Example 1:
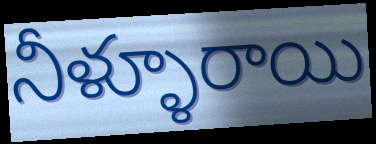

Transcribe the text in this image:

నీళ్ళూరాయి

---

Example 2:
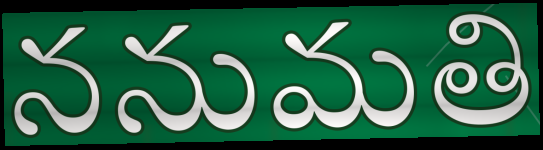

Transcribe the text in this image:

ననుమతి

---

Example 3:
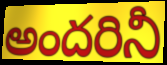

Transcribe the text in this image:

అందరినీ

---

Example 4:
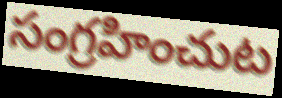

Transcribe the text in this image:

సంగ్రహించుట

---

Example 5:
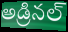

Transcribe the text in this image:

అడ్రినల్